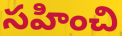
సహించి